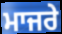
ਮਾਜਰੇ